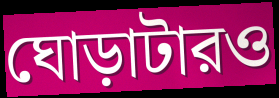
ঘোড়াটারও